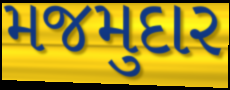
મજમુદાર